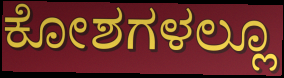
ಕೋಶಗಳಲ್ಲೂ